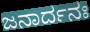
ಜನಾರ್ದನಃ